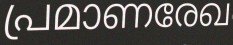
പ്രമാണരേഖ